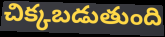
చిక్కబడుతుంది